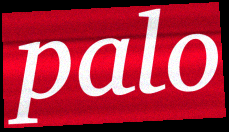
palo